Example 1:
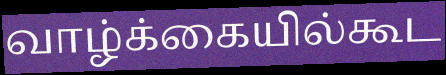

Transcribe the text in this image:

வாழ்க்கையில்கூட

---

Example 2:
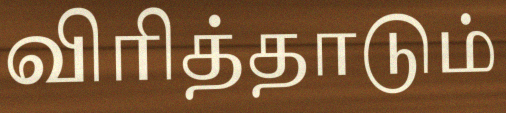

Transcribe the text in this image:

விரித்தாடும்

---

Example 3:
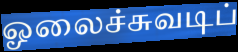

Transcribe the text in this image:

ஓலைச்சுவடிப்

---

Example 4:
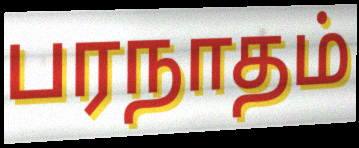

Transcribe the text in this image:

பரநாதம்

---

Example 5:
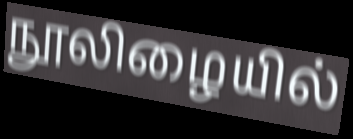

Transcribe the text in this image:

நூலிழையில்